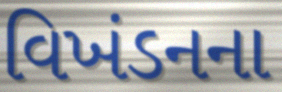
વિખંડનના